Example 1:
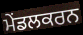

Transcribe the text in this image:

ਮੇਂਡਲਕਰਨ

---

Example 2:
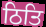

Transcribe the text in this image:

ਠਿਤਿ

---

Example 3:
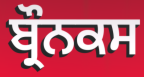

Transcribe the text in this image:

ਬ੍ਰੌਨਕਸ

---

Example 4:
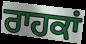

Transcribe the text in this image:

ਰਾਹਕਾਂ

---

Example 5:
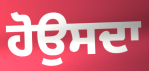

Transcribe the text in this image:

ਹੋਉਸਦਾ